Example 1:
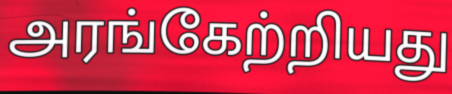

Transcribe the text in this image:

அரங்கேற்றியது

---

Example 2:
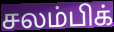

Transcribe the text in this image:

சலம்பிக்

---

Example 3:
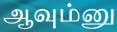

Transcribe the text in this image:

ஆவும்னு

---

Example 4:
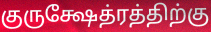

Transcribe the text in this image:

குருக்ஷேத்ரத்திற்கு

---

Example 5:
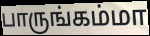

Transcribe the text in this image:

பாருங்கம்மா